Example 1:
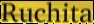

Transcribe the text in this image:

Ruchita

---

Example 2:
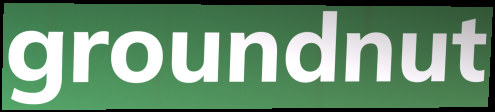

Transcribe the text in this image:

groundnut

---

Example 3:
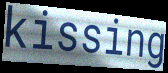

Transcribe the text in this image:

kissing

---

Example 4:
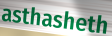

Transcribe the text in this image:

asthasheth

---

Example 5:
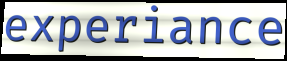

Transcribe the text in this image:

experiance